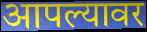
आपल्यावर